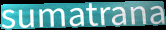
sumatrana